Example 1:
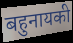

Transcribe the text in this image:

बहुनायकी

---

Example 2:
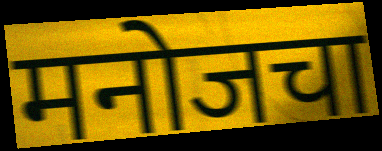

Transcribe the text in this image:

मनोजचा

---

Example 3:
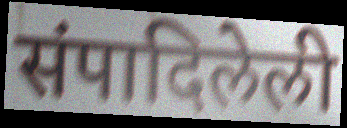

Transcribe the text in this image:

संपादिलेली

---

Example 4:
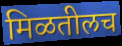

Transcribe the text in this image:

मिळतीलच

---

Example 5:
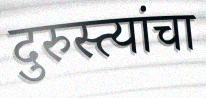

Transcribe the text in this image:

दुरुस्त्यांचा